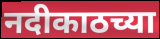
नदीकाठच्या